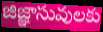
జిజ్ఞాసువులకు